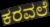
ಕರವಲೆ